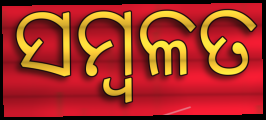
ସମ୍ବଳତ